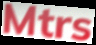
Mtrs